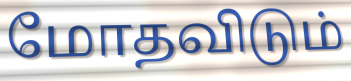
மோதவிடும்